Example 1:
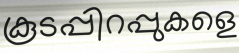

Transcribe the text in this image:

കൂടപ്പിറപ്പുകളെ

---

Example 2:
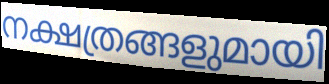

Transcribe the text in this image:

നക്ഷത്രങ്ങളുമായി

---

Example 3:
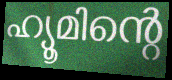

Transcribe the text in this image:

ഹ്യൂമിന്റെ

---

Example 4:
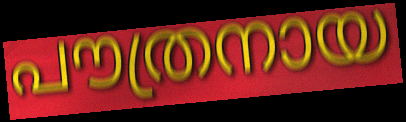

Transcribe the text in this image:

പൗത്രനായ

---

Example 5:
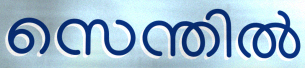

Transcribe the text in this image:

സെന്തിൽ